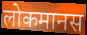
लोकमानस